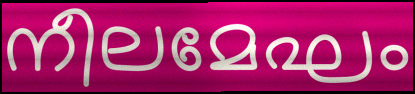
നീലമേഘം